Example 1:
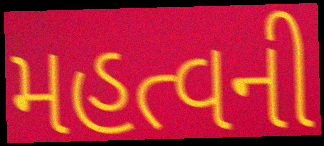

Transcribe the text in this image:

મહત્વની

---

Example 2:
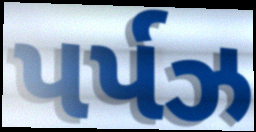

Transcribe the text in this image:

પર્પઝ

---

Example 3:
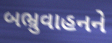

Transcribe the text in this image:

બભ્રુવાહનને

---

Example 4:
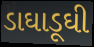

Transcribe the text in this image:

ડાઘાડૂઘી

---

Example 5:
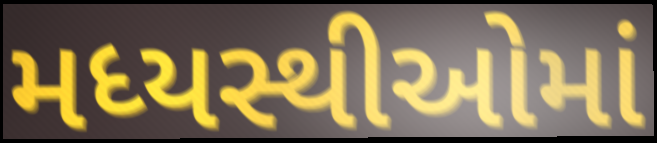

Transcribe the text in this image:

મધ્યસ્થીઓમાં